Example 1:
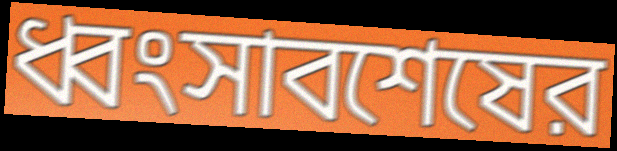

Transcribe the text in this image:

ধ্বংসাবশেষের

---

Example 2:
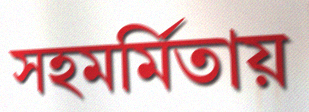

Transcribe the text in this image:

সহমর্মিতায়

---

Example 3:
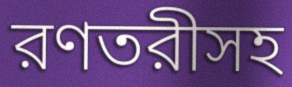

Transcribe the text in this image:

রণতরীসহ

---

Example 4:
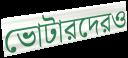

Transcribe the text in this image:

ভোটারদেরও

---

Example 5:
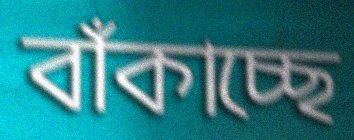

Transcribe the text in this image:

বাঁকাচ্ছে